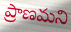
ప్రాణమని